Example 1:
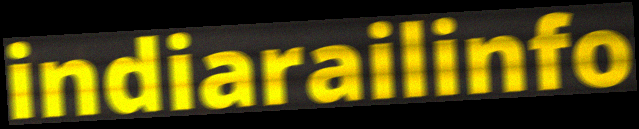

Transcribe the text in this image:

indiarailinfo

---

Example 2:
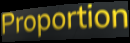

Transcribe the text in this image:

Proportion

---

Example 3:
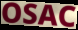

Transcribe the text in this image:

OSAC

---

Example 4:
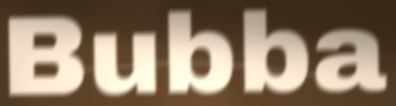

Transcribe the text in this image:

Bubba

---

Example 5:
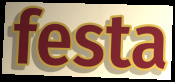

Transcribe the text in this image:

festa